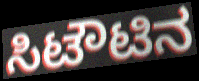
ಸಿಟೌಟಿನ